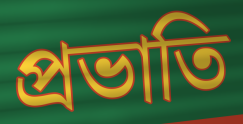
প্রভাতি